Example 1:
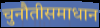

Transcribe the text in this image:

चुनौतीसमाधान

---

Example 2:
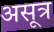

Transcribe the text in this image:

असूत्र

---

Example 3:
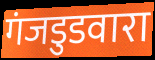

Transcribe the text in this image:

गंजडुडवारा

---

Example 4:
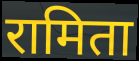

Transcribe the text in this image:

रामिता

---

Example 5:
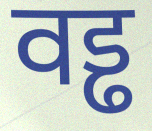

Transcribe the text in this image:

वड्ढ